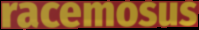
racemosus